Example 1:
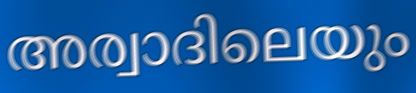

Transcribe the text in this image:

അര്വാദിലെയും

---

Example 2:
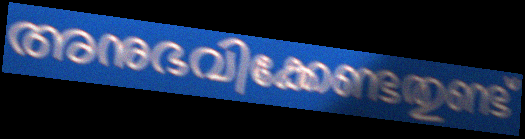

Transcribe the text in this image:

അനുഭവിക്കേണ്ടതുണ്ട്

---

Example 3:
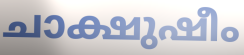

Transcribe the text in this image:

ചാക്ഷുഷീം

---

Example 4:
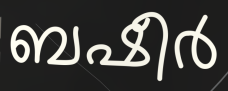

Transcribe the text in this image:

ബഷീർ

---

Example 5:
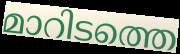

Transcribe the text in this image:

മാറിടത്തെ